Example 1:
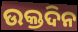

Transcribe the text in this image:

ଉକ୍ତଦିନ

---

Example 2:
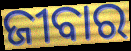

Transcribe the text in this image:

ଜୀବାର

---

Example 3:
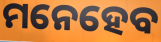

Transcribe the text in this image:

ମନେହେବ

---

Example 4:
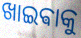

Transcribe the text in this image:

ଖାଇଵାକୁ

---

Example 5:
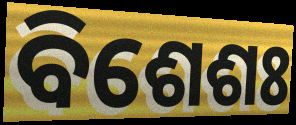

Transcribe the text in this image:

ବିଶେଶଃ